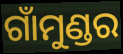
ଗାଁମୁଣ୍ଡର